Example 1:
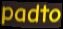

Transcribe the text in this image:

padto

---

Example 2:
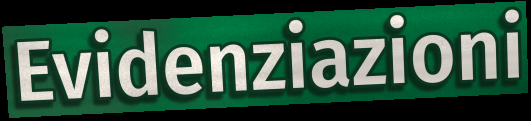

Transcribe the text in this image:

Evidenziazioni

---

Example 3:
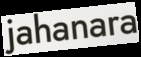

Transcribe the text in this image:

jahanara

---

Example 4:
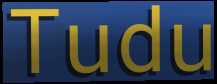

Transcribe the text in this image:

Tudu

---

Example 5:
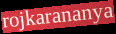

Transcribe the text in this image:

rojkarananya